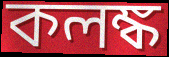
কলঙ্ক